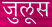
जुलूस